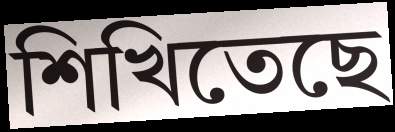
শিখিতেছে